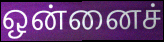
ஒன்னைச்